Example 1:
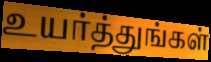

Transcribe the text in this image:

உயர்த்துங்கள்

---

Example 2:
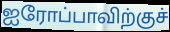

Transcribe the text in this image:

ஐரோப்பாவிற்குச்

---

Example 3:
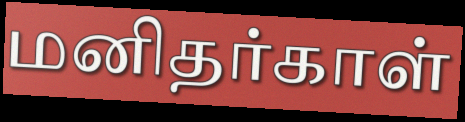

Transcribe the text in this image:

மனிதர்காள்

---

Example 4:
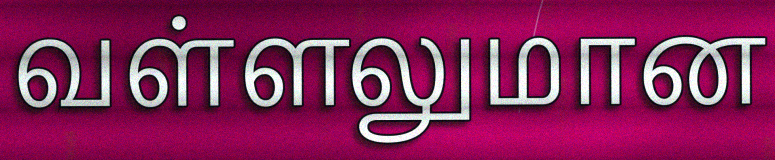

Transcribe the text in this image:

வள்ளலுமான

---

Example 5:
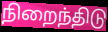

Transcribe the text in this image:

நிறைந்திடு